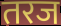
तरज